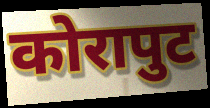
कोरापुट